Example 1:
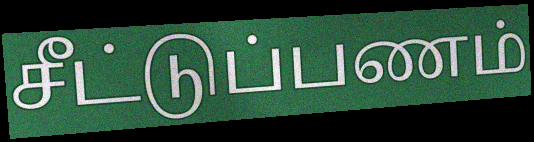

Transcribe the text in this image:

சீட்டுப்பணம்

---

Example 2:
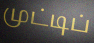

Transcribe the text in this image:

முட்டிப்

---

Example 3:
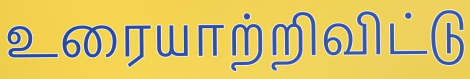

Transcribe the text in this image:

உரையாற்றிவிட்டு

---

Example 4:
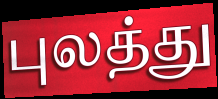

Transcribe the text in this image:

புலத்து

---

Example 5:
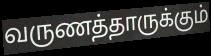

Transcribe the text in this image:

வருணத்தாருக்கும்